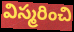
విస్మరించి